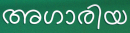
അഗാരിയ